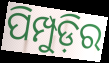
ପିମ୍ପୁଡ଼ିର